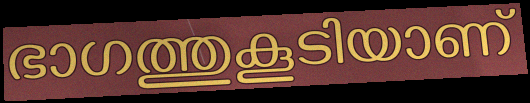
ഭാഗത്തുകൂടിയാണ്